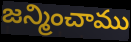
జన్మించాము